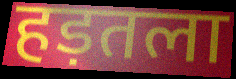
हड़तला